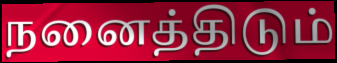
நனைத்திடும்